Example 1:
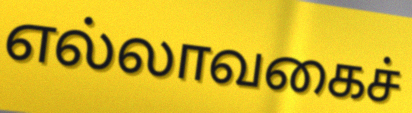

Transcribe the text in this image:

எல்லாவகைச்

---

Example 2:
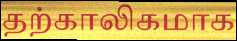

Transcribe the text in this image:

தற்காலிகமாக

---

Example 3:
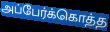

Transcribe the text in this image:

அப்பேர்க்கொத்த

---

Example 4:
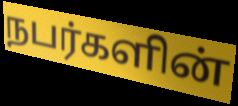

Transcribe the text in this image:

நபர்களின்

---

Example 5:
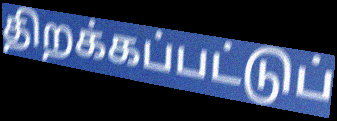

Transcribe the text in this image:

திறக்கப்பட்டுப்